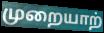
முறையாற்